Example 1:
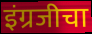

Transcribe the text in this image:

इंग्रजीचा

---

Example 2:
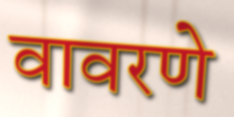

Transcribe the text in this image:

वावरणे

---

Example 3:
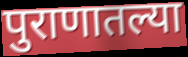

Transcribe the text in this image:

पुराणातल्या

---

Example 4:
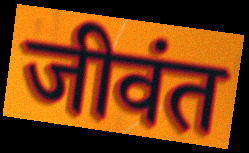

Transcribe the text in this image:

जीवंत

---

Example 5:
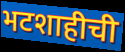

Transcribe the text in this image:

भटशाहीची